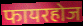
फायरहोज